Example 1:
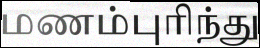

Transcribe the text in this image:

மணம்புரிந்து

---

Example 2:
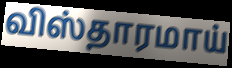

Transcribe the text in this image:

விஸ்தாரமாய்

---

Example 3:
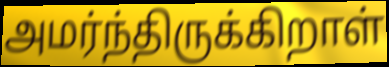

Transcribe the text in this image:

அமர்ந்திருக்கிறாள்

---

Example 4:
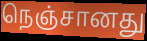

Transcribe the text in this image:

நெஞ்சானது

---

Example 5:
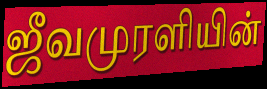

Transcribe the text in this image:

ஜீவமுரளியின்